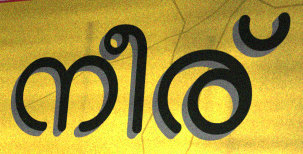
നീര്